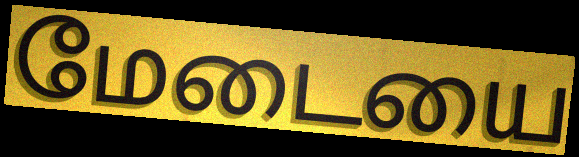
மேடையை